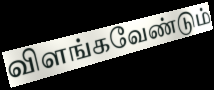
விளங்கவேண்டும்